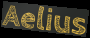
Aelius